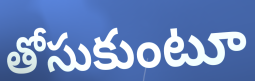
తోసుకుంటూ